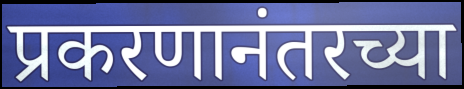
प्रकरणानंतरच्या